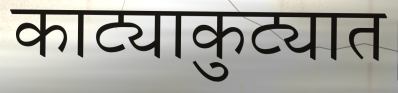
काट्याकुट्यात